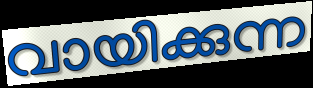
വായിക്കുന്ന